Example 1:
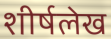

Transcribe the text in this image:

शीर्षलेख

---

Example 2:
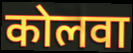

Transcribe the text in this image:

कोलवा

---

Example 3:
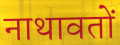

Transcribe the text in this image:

नाथावतों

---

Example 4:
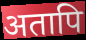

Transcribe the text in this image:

अतापि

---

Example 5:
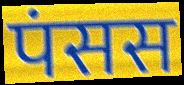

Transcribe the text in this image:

पंसस